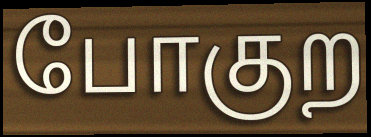
போகுற